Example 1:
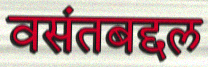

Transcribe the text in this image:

वसंतबद्दल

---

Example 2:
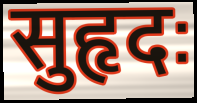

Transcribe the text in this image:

सुहृदः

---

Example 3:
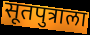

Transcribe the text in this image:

सूतपुत्राला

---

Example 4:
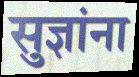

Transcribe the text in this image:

सुज्ञांना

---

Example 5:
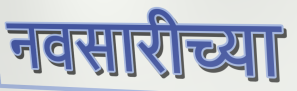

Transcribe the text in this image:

नवसारीच्या